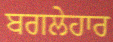
ਬਗਲੇਹਾਰ